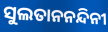
ସୁଲତାନନନ୍ଦିନୀ